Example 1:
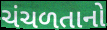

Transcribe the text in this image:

ચંચળતાનો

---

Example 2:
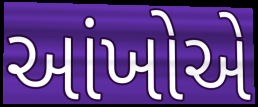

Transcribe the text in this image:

આંખોએ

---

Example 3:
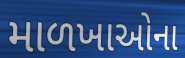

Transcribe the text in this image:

માળખાઓના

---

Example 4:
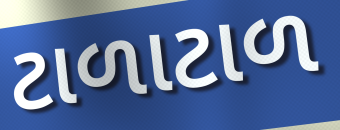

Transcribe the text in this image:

ટાળાટાળ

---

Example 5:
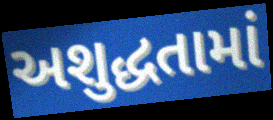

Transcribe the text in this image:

અશુદ્ધતામાં